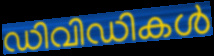
ഡിവിഡികൾ